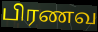
பிரணவ